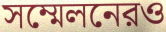
সম্মেলনেরও